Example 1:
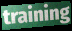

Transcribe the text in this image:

training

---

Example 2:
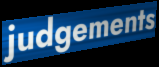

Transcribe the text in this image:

judgements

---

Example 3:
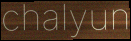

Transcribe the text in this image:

chalyun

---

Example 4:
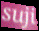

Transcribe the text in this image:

suji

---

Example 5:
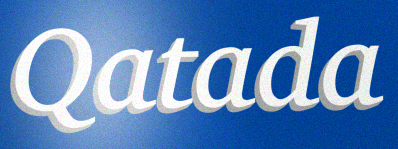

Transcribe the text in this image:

Qatada